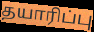
தயாரிப்பு